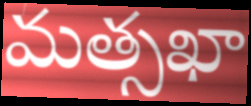
మత్సఖా